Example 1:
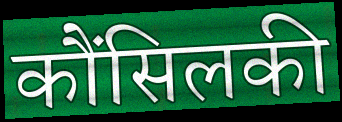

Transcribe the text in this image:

कौंसिलकी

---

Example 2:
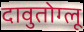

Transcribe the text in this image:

दावुतोग्लू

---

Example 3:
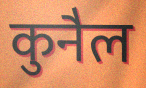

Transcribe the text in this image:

कुनैल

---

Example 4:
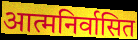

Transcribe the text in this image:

आत्मनिर्वासित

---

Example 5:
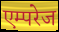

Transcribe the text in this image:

एम्परेज